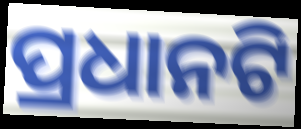
ପ୍ରଧାନଟି